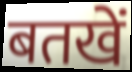
बतखें